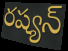
రష్యన్